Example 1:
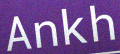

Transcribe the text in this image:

Ankh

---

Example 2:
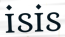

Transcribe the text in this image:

isis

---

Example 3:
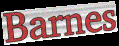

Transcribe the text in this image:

Barnes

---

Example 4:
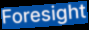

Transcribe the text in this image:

Foresight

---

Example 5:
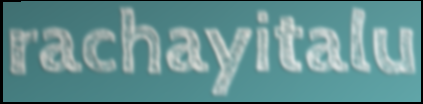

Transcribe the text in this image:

rachayitalu